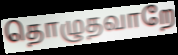
தொழுதவாறே